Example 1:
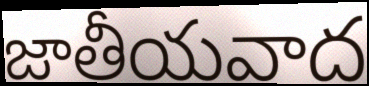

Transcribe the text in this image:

జాతీయవాద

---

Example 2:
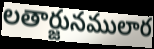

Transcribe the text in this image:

లతార్జునములార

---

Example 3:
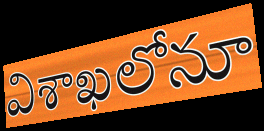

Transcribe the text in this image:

విశాఖలోనూ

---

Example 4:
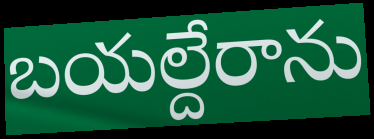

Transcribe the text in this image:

బయల్దేరాను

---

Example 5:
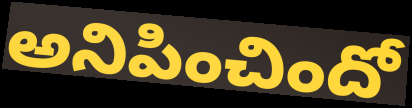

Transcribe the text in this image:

అనిపించిందో